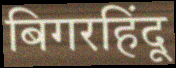
बिगरहिंदू